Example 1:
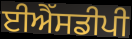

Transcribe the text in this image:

ਈਐੱਸਡੀਪੀ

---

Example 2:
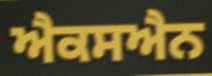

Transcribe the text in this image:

ਐਕਸਐਨ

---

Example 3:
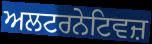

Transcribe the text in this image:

ਅਲਟਰਨੇਟਿਵਜ਼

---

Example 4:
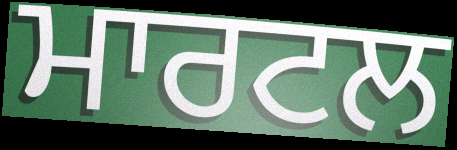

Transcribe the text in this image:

ਮਾਰਟਲ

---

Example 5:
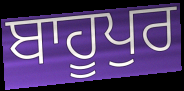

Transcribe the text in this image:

ਬਾਹੂਪੁਰ